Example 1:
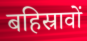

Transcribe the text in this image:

बहिस्रावों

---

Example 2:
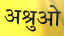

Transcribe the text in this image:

अश्रुओ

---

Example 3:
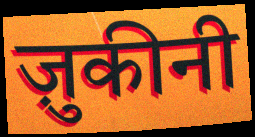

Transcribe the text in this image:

ज़ुकीनी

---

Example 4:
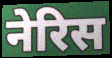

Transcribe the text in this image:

नेरिस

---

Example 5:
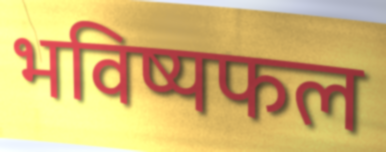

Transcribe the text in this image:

भविष्यफल